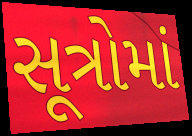
સૂત્રોમાં